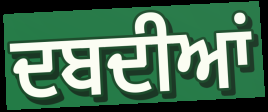
ਦਬਦੀਆਂ